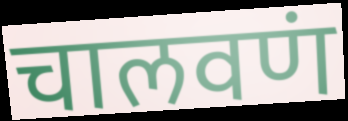
चालवणं